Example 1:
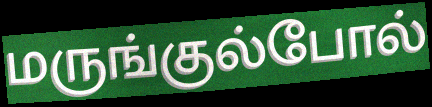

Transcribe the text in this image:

மருங்குல்போல்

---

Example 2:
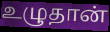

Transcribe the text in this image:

உழுதான்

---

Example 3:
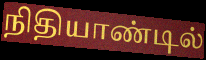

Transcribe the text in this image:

நிதியாண்டில்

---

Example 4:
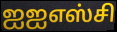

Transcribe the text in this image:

ஐஐஎஸ்சி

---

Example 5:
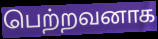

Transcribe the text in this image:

பெற்றவனாக